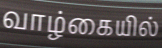
வாழ்கையில்